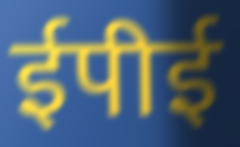
ईपीई